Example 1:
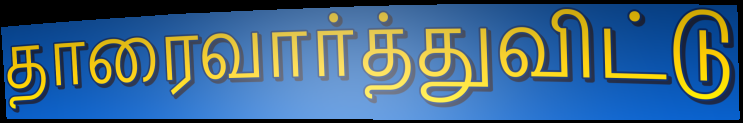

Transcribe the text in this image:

தாரைவார்த்துவிட்டு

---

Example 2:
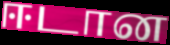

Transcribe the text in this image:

ஈடான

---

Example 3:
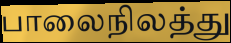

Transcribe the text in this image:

பாலைநிலத்து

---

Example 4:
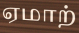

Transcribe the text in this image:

ஏமாற்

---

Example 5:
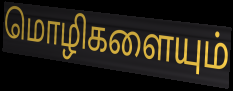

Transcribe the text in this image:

மொழிகளையும்